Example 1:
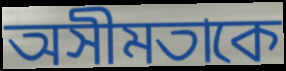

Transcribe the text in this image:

অসীমতাকে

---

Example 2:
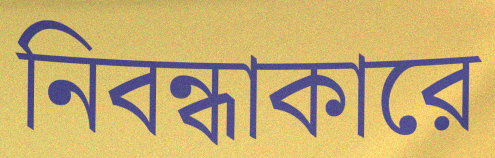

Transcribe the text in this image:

নিবন্ধাকারে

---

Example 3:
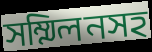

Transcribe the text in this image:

সম্মিলনসহ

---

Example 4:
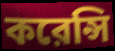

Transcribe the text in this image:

করেন্সি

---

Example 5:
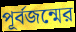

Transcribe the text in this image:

পূর্বজন্মের